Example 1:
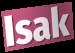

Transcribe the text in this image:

Isak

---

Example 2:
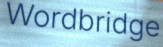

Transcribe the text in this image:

Wordbridge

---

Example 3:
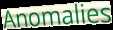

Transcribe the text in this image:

Anomalies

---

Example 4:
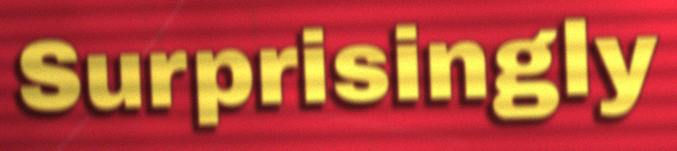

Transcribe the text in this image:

Surprisingly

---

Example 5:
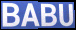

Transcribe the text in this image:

BABU